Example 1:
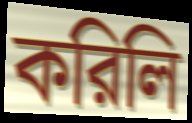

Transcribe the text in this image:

করিলি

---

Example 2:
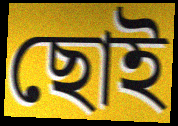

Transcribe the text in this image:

ছোই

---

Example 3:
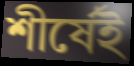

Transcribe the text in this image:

শীর্ষেই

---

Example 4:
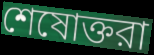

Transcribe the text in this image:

শেষোক্তরা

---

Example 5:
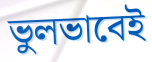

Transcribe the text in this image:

ভুলভাবেই